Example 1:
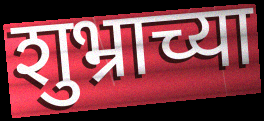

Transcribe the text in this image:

शुभ्राच्या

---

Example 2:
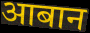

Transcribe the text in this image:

आबान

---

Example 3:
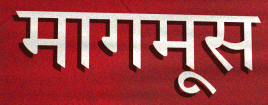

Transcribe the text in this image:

मागमूस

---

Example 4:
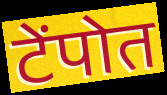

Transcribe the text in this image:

टेंपोत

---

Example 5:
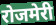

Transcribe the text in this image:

रोजमेरी